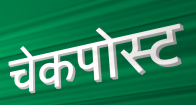
चेकपोस्ट